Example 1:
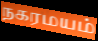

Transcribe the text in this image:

நகரமயம்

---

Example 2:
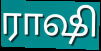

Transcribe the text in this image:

ராஷி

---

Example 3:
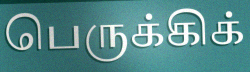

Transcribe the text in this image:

பெருக்கிக்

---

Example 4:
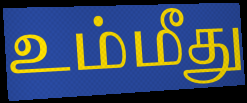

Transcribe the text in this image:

உம்மீது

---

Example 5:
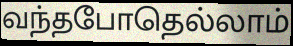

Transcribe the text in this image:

வந்தபோதெல்லாம்